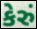
કેરું